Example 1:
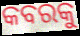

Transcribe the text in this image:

କବରକୁ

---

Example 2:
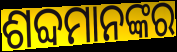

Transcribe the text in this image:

ଶବ୍ଦମାନଙ୍କର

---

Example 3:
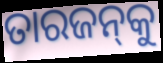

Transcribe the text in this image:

ତାରଜନ୍‌କୁ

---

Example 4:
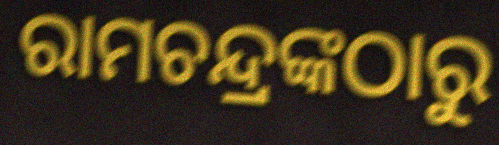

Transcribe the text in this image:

ରାମଚନ୍ଦ୍ରଙ୍କଠାରୁ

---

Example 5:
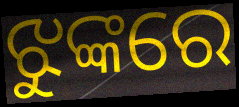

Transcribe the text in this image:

ଝୁଙ୍କରେ